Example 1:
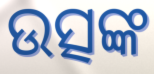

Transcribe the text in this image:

ଉତ୍ସଙ୍କ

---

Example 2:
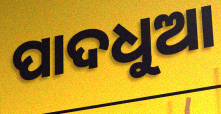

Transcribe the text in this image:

ପାଦଧୁଆ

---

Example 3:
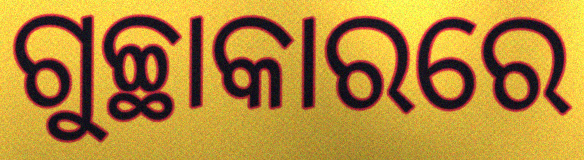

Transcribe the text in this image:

ଗୁଚ୍ଛାକାରରେ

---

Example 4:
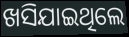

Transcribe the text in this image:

ଖସିଯାଇଥିଲେ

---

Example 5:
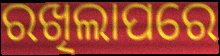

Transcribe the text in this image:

ରଖିଲାପରେ